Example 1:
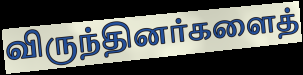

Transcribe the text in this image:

விருந்தினர்களைத்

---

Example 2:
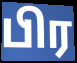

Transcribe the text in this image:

பிர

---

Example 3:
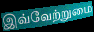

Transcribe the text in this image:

இவ்வேற்றுமை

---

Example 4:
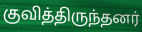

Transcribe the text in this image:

குவித்திருந்தனர்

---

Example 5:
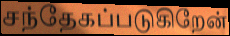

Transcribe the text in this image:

சந்தேகப்படுகிறேன்